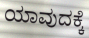
ಯಾವುದಕ್ಕೆ